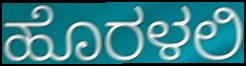
ಹೊರಳಲಿ